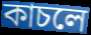
কাচলে